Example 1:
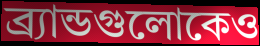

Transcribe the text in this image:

ব্র্যান্ডগুলোকেও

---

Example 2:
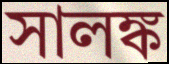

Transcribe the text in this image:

সালঙ্ক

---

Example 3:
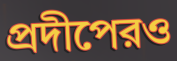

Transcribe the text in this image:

প্রদীপেরও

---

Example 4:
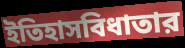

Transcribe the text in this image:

ইতিহাসবিধাতার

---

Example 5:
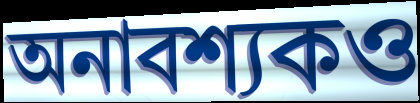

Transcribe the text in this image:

অনাবশ্যকও